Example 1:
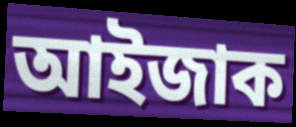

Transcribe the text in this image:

আইজাক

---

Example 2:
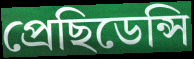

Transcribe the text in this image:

প্ৰেছিডেন্সি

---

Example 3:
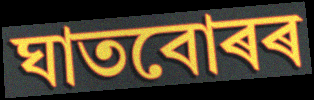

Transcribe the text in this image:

ঘাতবোৰৰ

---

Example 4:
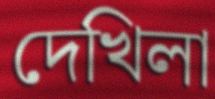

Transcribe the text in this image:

দেখিলা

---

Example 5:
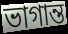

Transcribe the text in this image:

ভাগান্ত